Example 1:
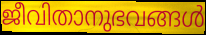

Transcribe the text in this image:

ജീവിതാനുഭവങ്ങൾ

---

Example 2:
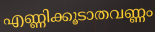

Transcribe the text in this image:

എണ്ണിക്കൂടാതവണ്ണം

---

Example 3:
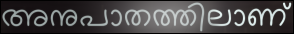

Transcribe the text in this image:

അനുപാതത്തിലാണ്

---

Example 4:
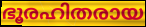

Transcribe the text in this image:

ഭൂരഹിതരായ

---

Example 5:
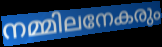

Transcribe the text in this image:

നമ്മിലനേകരും